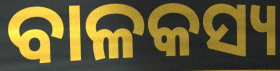
ବାଳକସ୍ୟ